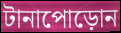
টানাপোড়োন